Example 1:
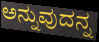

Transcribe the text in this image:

ಅನ್ನುವುದನ್ನ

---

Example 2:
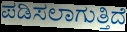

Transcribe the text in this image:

ಪಡಿಸಲಾಗುತ್ತಿದೆ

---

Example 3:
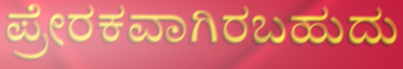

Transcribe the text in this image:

ಪ್ರೇರಕವಾಗಿರಬಹುದು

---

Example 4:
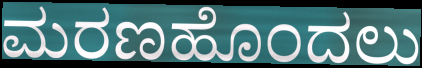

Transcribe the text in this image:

ಮರಣಹೊಂದಲು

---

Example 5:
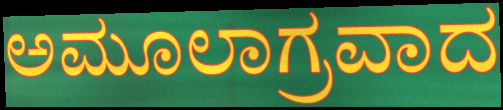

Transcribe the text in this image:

ಅಮೂಲಾಗ್ರವಾದ